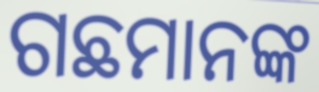
ଗଛମାନଙ୍କ